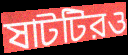
ষাটটিরও